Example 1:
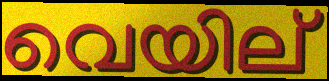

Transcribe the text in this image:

വെയില്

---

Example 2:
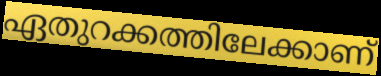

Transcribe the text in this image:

ഏതുറക്കത്തിലേക്കാണ്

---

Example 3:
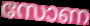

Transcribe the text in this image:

സോണ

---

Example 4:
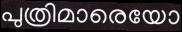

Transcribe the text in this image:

പുത്രിമാരെയോ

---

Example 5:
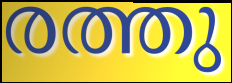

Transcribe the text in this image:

രത്തു